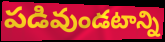
పడివుండటాన్ని